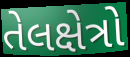
તેલક્ષેત્રો